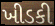
ખીડકી